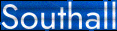
Southall